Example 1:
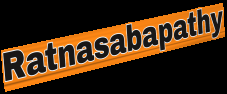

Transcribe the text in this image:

Ratnasabapathy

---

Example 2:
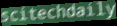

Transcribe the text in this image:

scitechdaily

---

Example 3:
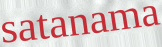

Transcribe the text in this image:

satanama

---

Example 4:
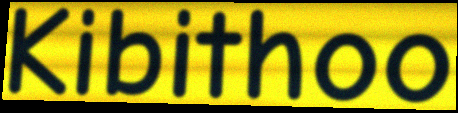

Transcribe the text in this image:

Kibithoo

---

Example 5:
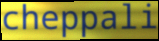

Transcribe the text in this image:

cheppali